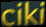
ciki